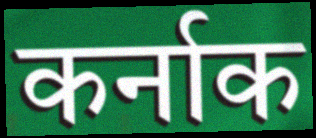
कर्नाक